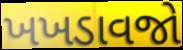
ખખડાવજો